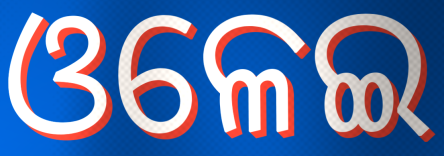
ଓଳେଇ